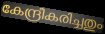
കേന്ദ്രീകരിച്ചതും